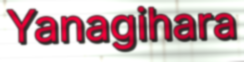
Yanagihara